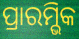
ପ୍ରାରମ୍ଭିକ